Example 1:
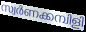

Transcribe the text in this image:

സ്വർണക്കമ്പിളി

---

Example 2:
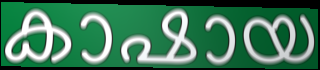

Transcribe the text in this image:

കാഷായ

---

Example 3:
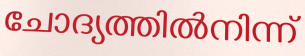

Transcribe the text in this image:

ചോദ്യത്തിൽനിന്ന്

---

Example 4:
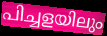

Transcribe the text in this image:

പിച്ചളയിലും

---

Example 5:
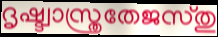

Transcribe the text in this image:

ദൃഷ്ട്വാസ്ത്രതേജസ്തു